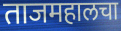
ताजमहालचा